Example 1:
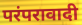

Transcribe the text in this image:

परंपरावादी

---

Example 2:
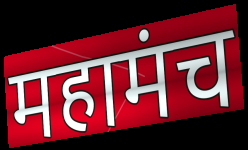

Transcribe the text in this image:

महामंच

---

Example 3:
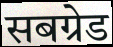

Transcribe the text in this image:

सबग्रेड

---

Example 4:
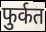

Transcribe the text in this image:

फुर्कत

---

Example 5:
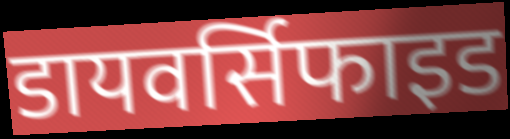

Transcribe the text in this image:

डायवर्सिफाइड